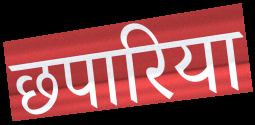
छपारिया